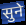
सुने